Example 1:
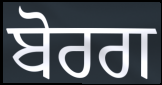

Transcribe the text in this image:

ਬੋਰਗ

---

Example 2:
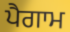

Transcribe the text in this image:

ਪੈਗਾਮ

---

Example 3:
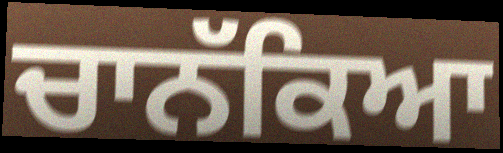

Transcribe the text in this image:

ਚਾਨੱਕਿਆ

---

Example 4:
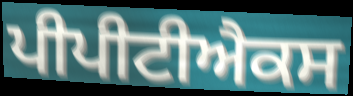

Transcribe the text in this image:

ਪੀਪੀਟੀਐਕਸ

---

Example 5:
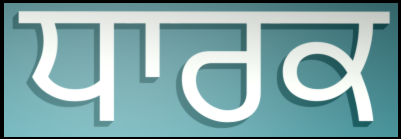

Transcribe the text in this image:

ਧਾਰਕ